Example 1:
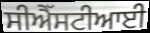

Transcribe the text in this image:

ਸੀਐੱਸਟੀਆਈ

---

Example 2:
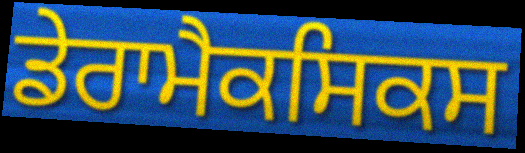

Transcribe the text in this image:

ਡੇਰਾਮੈਕਸਿਕਸ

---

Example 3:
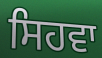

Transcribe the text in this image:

ਸਿਹਵਾ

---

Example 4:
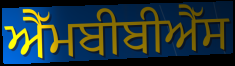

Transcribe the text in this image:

ਐੱਮਬੀਬੀਐੱਸ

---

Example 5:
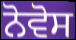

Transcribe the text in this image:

ਨੋਵੋਸ